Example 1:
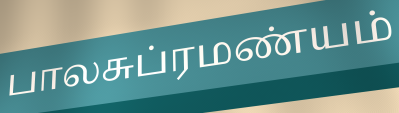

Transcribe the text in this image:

பாலசுப்ரமண்யம்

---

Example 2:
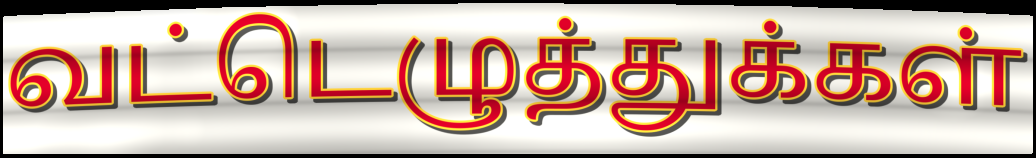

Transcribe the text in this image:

வட்டெழுத்துக்கள்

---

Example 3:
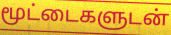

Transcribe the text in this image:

மூட்டைகளுடன்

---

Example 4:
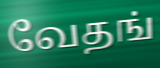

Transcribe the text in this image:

வேதங்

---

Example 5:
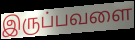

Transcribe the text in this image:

இருப்பவளை